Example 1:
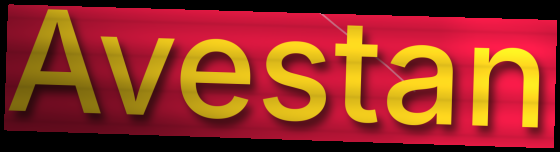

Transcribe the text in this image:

Avestan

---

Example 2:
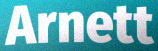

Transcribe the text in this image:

Arnett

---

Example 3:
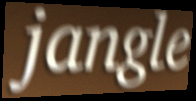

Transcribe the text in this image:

jangle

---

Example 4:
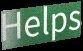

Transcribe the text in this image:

Helps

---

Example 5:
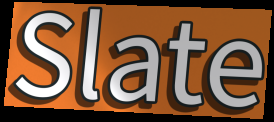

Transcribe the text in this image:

Slate